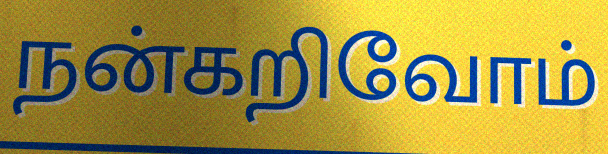
நன்கறிவோம்